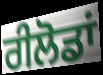
ਰੀਲੋਡਾਂ